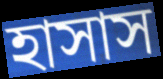
হাসাস